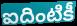
ఐదింటికీ